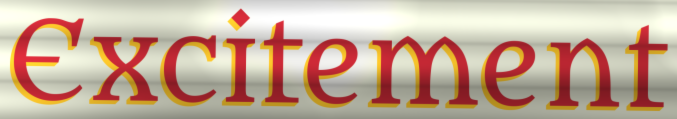
Excitement